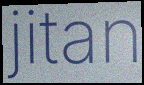
jitan